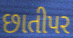
છાતીપર